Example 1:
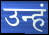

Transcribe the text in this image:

उन्हं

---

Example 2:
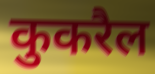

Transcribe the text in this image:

कुकरैल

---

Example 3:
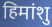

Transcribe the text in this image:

हिमांशु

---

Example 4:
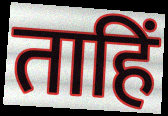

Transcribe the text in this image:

ताहिं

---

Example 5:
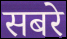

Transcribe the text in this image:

सबरे